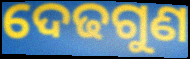
ଦେଢଗୁଣ